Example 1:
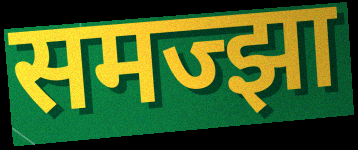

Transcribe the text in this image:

समज्झा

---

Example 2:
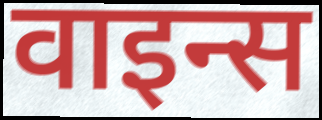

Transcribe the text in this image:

वाइन्स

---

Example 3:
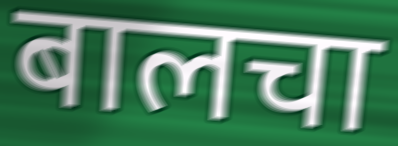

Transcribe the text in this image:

बालचा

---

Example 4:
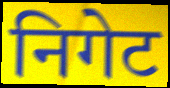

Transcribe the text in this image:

निगेट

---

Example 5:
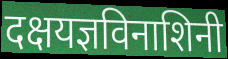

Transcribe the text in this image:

दक्षयज्ञविनाशिनी